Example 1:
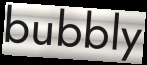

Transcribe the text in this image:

bubbly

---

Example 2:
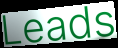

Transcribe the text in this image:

Leads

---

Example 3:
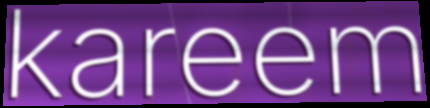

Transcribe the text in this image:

kareem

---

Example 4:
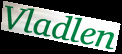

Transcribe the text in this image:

Vladlen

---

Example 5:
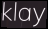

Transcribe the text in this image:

klay